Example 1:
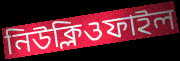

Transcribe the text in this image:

নিউক্লিওফাইল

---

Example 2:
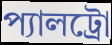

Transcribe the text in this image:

প্যালট্রো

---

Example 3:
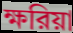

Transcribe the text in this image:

ক্ষরিয়া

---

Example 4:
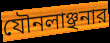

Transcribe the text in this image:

যৌনলাঞ্ছনার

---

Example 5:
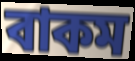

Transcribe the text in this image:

বাকম